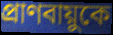
প্রাণবায়ুকে